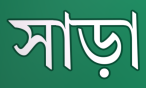
সাড়া